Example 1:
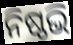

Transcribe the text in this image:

ନିଷ୍ଠଭି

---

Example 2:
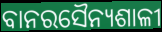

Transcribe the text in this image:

ବାନରସୈନ୍ୟଶାଳୀ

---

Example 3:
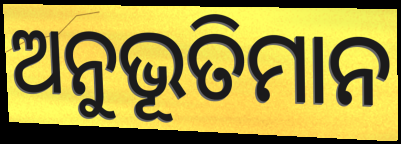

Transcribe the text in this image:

ଅନୁଭୂତିମାନ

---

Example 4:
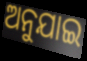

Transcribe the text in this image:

ଅନୁଯାଇ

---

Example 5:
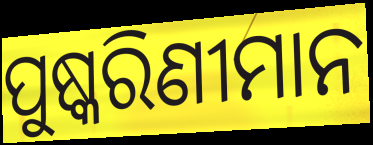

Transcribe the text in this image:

ପୁଷ୍କରିଣୀମାନ